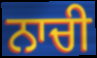
ਨਾਚੀ